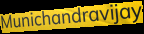
Munichandravijay